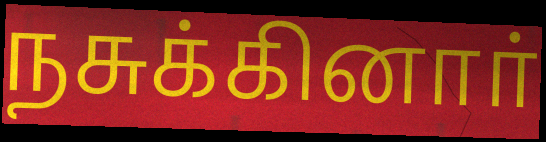
நசுக்கினார்